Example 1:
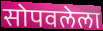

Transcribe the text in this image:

सोपवलेला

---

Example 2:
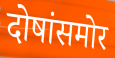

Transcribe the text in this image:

दोषांसमोर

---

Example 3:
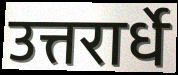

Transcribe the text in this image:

उत्तरार्धे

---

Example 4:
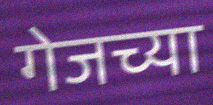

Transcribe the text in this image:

गेजच्या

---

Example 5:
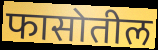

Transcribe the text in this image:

फासोतील